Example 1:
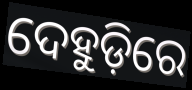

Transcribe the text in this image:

ଦେହୁଡ଼ିରେ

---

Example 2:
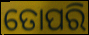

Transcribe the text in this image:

ତୋପରି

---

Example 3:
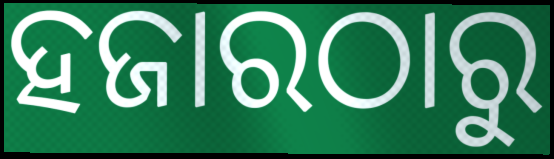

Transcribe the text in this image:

ହଜାରଠାରୁ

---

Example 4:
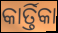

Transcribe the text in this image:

କାର୍ତ୍ତିକା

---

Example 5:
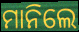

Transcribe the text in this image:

ମାନିଲେ